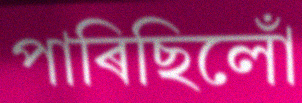
পাৰিছিলোঁ